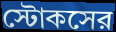
স্টোকসের